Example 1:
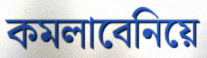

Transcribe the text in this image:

কমলাবেনিয়ে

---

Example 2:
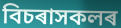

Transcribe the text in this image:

বিচৰাসকলৰ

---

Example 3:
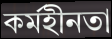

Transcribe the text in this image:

কৰ্মহীনতা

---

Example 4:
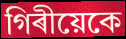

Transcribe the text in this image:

গিৰীয়েকে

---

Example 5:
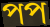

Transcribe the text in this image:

পপ